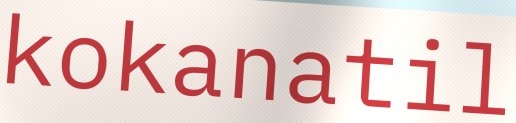
kokanatil